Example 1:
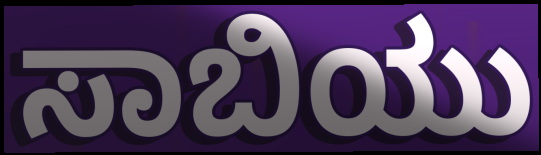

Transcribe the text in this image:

ಸಾಬಿಯು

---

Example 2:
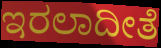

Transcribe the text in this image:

ಇರಲಾದೀತೆ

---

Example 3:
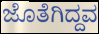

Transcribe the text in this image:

ಜೊತೆಗಿದ್ದವ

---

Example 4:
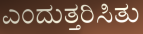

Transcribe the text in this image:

ಎಂದುತ್ತರಿಸಿತು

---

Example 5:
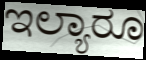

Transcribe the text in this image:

ಇಲ್ಯಾರೂ